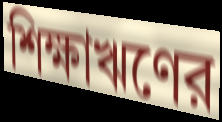
শিক্ষাঋণের